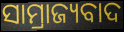
ସାମ୍ରାଜ୍ୟବାଦ